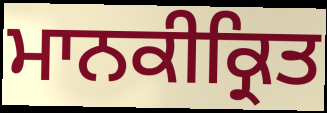
ਮਾਨਕੀਕ੍ਰਿਤ